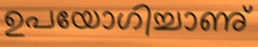
ഉപയോഗിച്ചാണു്